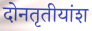
दोनतृतीयांश